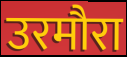
उरमौरा